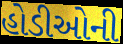
હોડીઓની